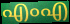
എംഎ